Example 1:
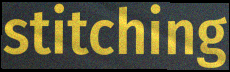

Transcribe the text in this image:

stitching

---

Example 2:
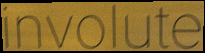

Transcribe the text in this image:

involute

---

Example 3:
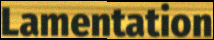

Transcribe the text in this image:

Lamentation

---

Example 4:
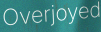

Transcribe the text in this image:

Overjoyed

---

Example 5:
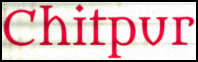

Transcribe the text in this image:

Chitpur